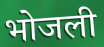
भोजली